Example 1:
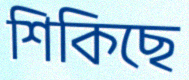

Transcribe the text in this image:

শিকিছে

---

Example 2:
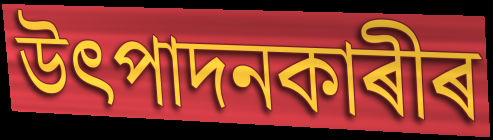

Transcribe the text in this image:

উৎপাদনকাৰীৰ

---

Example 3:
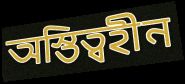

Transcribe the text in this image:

অস্তিত্বহীন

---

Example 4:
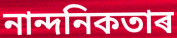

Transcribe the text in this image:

নান্দনিকতাৰ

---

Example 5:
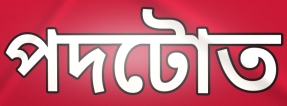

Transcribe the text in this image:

পদটোত